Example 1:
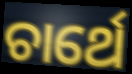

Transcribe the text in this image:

ଚାର୍ଥେ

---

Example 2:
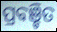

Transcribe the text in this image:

ପ୍ରବଞ୍ଚିତ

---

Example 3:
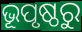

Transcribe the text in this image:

ଭୂପୃଷ୍ଠରୁ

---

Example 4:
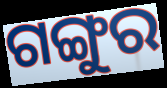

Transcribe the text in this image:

ଗଙ୍ଗୁର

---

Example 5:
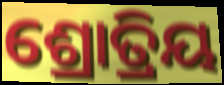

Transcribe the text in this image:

ଶ୍ରୋତ୍ରିୟ